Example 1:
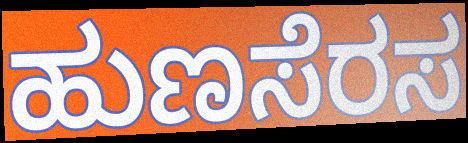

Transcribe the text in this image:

ಹುಣಸೆರಸ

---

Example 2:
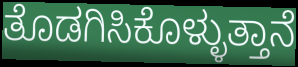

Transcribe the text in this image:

ತೊಡಗಿಸಿಕೊಳ್ಳುತ್ತಾನೆ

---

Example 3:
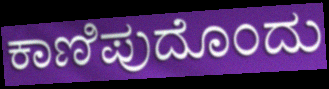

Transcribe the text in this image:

ಕಾಣಿಪುದೊಂದು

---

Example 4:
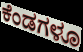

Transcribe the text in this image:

ಕೆಂಡಗಳೂ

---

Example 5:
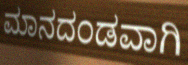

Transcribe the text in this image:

ಮಾನದಂಡವಾಗಿ